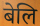
बेलि